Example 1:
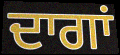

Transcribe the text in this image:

ਦਾਗਾਂ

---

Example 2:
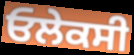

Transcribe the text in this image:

ਓਲੇਕਸੀ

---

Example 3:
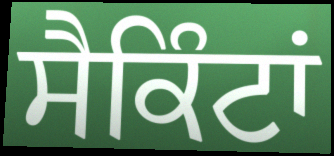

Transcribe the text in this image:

ਸੈਕਿੰਟਾਂ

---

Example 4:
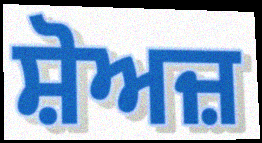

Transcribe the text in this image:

ਸ਼ੋਅਜ਼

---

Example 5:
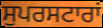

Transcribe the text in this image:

ਸੁਪਰਸਟਾਰਾਂ